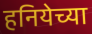
हनियेच्या